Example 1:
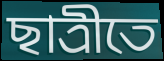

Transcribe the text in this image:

ছাত্রীতে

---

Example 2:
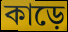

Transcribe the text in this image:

কাড়ে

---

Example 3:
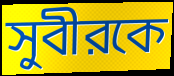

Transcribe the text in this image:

সুবীরকে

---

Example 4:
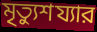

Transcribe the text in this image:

মৃত্যুশয্যার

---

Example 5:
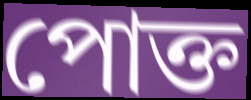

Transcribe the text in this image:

পোক্ত